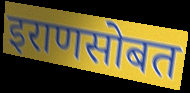
इराणसोबत